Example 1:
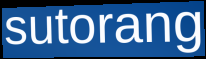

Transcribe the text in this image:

sutorang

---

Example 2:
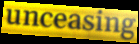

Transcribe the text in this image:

unceasing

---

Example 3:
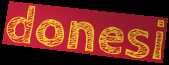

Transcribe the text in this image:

donesi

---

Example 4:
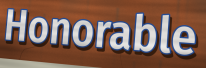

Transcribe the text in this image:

Honorable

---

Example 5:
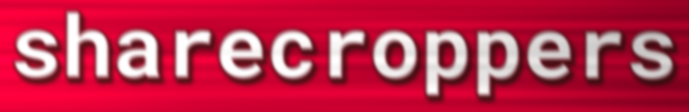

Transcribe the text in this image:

sharecroppers